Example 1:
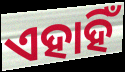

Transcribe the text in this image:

ଏହାହିଁ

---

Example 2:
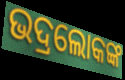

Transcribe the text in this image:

ଭଦ୍ରଲୋକଙ୍କ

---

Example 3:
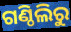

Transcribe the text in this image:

ଗଣ୍ଠିଲିରୁ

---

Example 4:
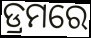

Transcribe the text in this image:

ଡ୍ରମରେ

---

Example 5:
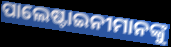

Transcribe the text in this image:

ପାଲେଷ୍ଟାଇନୀମାନଙ୍କୁ